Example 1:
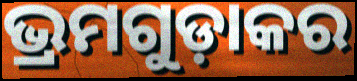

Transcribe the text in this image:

ଭ୍ରମଗୁଡ଼ାକର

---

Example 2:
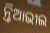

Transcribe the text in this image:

ନ୍ତିଆଭୀଲ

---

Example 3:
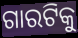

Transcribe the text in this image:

ଗାରଟିକୁ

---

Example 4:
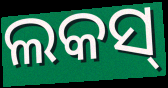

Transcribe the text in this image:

ଲକସ୍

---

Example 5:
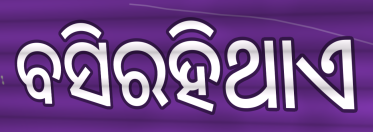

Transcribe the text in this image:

ବସିରହିଥାଏ